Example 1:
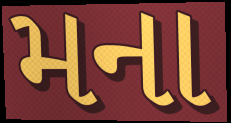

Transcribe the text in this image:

મના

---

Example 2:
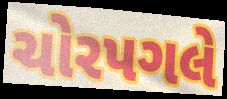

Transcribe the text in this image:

ચોરપગલે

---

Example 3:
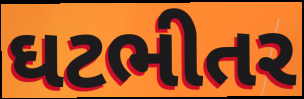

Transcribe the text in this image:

ઘટભીતર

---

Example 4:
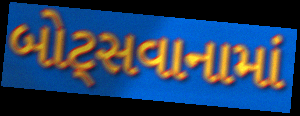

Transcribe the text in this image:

બોટ્સવાનામાં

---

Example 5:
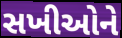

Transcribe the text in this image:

સખીઓને